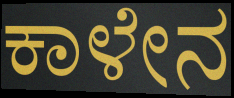
ಕಾಳೇನ